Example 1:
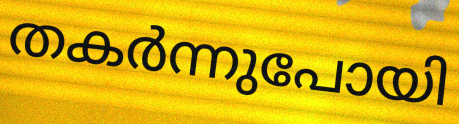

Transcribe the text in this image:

തകർന്നുപോയി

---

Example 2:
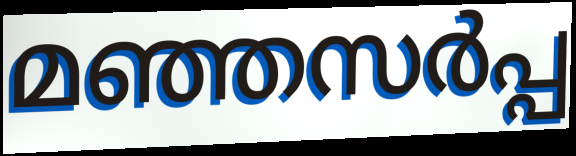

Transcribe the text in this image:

മഞ്ഞസർപ്പ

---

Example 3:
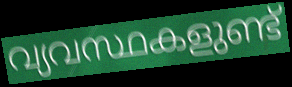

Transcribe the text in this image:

വ്യവസ്ഥകളുണ്ട്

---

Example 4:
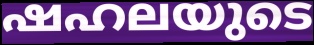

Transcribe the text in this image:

ഷഹലയുടെ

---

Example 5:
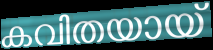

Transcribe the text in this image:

കവിതയായ്